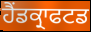
ਹੈਂਡਕ੍ਰਾਫਟਡ